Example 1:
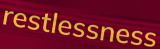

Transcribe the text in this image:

restlessness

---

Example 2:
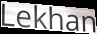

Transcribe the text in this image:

Lekhan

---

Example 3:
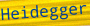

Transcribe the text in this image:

Heidegger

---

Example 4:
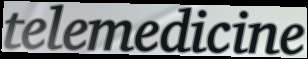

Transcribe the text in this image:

telemedicine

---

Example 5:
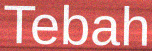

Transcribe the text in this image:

Tebah